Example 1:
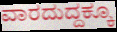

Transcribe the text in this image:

ವಾರದುದ್ದಕ್ಕೂ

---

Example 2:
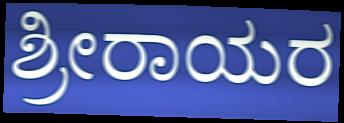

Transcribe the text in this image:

ಶ್ರೀರಾಯರ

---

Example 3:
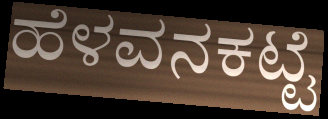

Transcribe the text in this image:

ಹೆಳವನಕಟ್ಟೆ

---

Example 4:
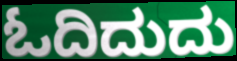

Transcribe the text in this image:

ಓದಿದುದು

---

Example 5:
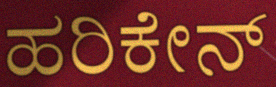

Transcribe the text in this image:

ಹರಿಕೇನ್